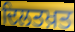
ਦਿਲਤਖ਼ਤ